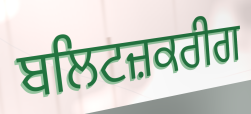
ਬਲਿਟਜ਼ਕਰੀਗ